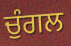
ਚੁੰਗਲ